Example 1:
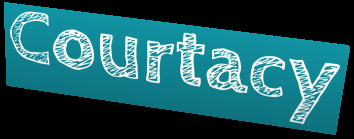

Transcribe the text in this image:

Courtacy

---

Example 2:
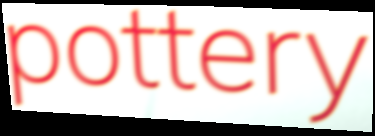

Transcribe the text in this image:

pottery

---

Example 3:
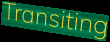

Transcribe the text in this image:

Transiting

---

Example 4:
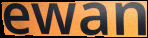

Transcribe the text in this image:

ewan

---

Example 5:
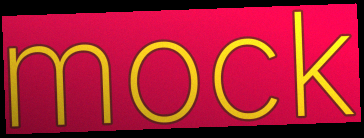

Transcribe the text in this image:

mock